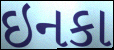
ઇનકા